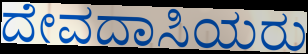
ದೇವದಾಸಿಯರು